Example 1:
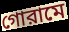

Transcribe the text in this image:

গোরামে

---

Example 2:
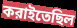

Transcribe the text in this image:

করাইতেছিল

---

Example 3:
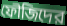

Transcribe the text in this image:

ফৌজিদের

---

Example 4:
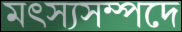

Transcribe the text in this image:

মৎস্যসম্পদে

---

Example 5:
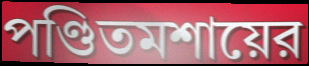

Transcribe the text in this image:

পণ্ডিতমশায়ের